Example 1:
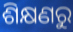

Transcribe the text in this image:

ଶିକ୍ଷଣରୁ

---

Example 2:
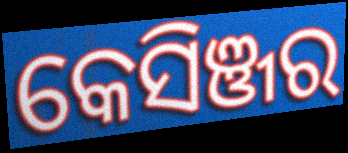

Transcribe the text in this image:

କେସିଞ୍ଜର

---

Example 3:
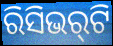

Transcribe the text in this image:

ରିସିଭର୍‌ଟି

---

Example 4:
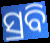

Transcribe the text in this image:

ସ୍ରବି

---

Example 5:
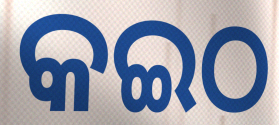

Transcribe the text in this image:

କଇଠ